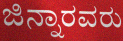
ಜಿನ್ನಾರವರು